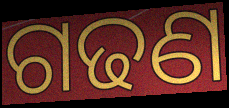
ଗଢଣ